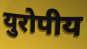
युरोपीय